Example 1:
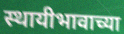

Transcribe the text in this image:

स्थायीभावाच्या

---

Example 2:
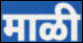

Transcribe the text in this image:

माळी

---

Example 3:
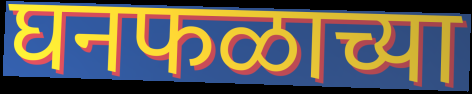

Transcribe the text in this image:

घनफळाच्या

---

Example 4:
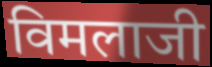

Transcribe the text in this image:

विमलाजी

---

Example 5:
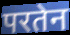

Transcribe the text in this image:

परतेन